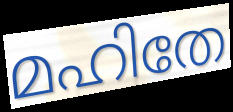
മഹിതേ